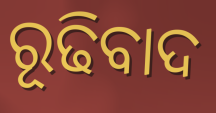
ରୂଢିବାଦ